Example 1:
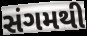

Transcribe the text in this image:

સંગમથી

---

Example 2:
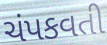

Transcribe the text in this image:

ચંપકવતી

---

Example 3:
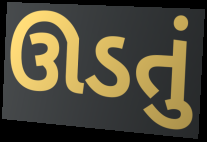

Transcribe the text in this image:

ઊડતું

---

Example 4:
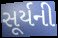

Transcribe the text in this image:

સૂર્યની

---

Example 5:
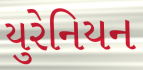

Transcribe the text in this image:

યુરેનિયન